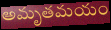
అమృతమయం